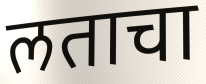
लताचा